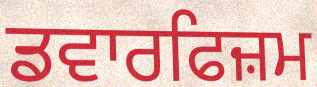
ਡਵਾਰਫਿਜ਼ਮ